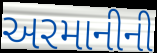
અરમાનીની